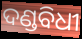
ଦଣ୍ଡବିଧୀ